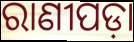
ରାଣୀପଡ଼ା